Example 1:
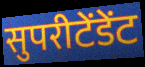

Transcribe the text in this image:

सुपरीटेंडेंट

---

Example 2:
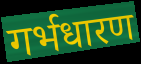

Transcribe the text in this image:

गर्भधारण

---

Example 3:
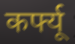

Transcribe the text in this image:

कर्फ्यू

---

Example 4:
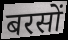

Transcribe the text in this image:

बरसों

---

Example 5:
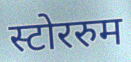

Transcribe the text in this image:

स्टोररुम